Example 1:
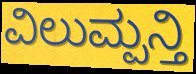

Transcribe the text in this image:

ವಿಲುಮ್ಪನ್ತಿ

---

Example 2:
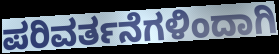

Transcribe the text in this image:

ಪರಿವರ್ತನೆಗಳಿಂದಾಗಿ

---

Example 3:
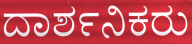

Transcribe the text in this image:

ದಾರ್ಶನಿಕರು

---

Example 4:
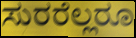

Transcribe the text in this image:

ಸುರರೆಲ್ಲರೂ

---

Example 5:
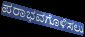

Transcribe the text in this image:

ಪರಾಭವಗೊಳಿಸಲು